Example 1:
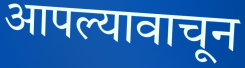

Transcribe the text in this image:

आपल्यावाचून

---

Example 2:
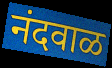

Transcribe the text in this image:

नंदवाळ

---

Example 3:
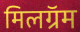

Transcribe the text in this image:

मिलग्रॅम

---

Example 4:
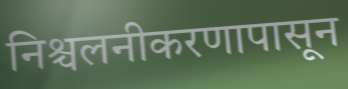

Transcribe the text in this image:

निश्चलनीकरणापासून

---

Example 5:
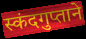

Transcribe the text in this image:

स्कंदगुप्ताने